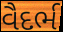
વૈદર્ભ